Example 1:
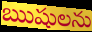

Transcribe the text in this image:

ఋషులను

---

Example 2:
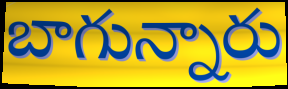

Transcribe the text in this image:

బాగున్నారు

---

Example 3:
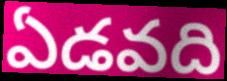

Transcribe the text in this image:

ఏడవది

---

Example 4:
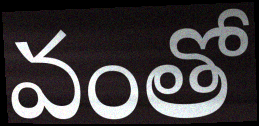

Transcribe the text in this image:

వంతో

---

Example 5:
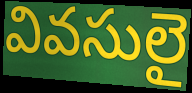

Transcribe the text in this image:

వివసులై